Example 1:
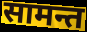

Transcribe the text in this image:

सामन्त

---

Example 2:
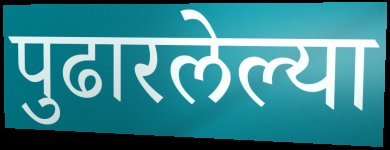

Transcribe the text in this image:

पुढारलेल्या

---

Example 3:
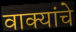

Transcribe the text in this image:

वाक्यांचे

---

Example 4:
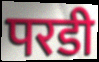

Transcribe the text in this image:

परडी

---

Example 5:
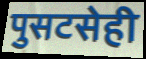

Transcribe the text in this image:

पुसटसेही